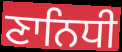
ਣਾਨਿਧੀ